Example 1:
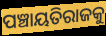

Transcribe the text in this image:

ପଞ୍ଚାୟତିରାଜକୁ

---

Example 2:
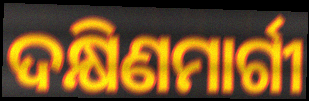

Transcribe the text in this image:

ଦକ୍ଷିଣମାର୍ଗୀ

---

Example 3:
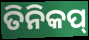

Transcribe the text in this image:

ତିନିକପ୍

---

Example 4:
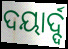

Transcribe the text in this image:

ଦୟାର୍ଦ୍ଦ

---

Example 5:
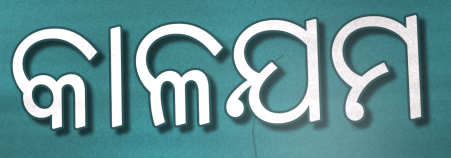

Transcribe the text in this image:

କାଳଯମ